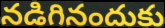
నడిగినందుకు